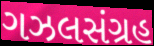
ગઝલસંગ્રહ